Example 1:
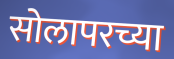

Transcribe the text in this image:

सोलापरच्या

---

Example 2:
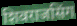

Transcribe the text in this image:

शिवराजसिंग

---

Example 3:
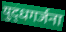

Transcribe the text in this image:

युद्धगर्जना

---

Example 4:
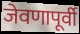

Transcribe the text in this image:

जेवणापूर्वी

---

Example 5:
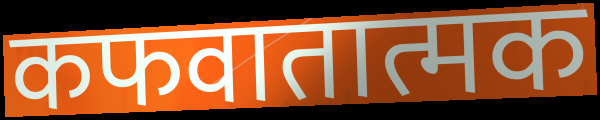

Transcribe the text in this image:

कफवातात्मक